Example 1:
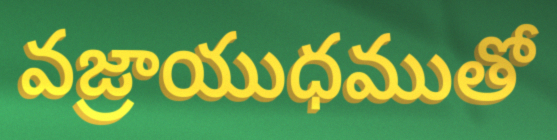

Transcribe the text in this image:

వజ్రాయుధముతో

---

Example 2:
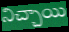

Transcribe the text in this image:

నిచ్చాయి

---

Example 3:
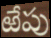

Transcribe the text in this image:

ఱేపు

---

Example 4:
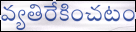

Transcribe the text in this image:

వ్యతిరేకించటం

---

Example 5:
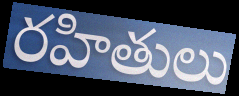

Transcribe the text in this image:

రహితులు